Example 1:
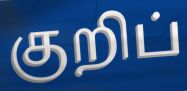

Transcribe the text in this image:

குறிப்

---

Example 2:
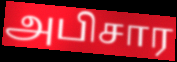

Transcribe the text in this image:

அபிசார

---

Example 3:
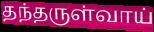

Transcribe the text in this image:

தந்தருள்வாய்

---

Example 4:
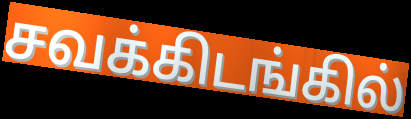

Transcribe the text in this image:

சவக்கிடங்கில்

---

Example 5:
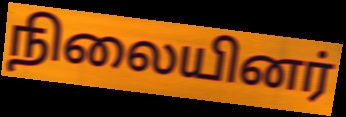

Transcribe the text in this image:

நிலையினர்